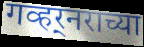
गव्हर्नराच्या